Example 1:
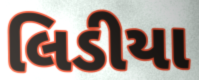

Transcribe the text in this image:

લિડીયા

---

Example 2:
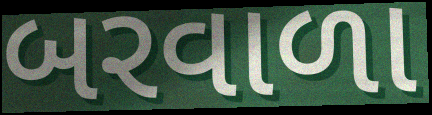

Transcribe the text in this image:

બરવાળા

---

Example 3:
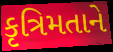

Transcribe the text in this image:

કૃત્રિમતાને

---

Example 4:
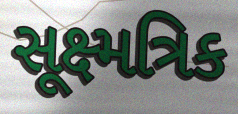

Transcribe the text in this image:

સૂક્ષ્મત્રિક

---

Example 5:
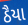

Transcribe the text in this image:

ઠૈયા